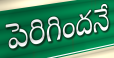
పెరిగిందనే